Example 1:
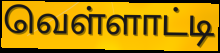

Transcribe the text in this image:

வெள்ளாட்டி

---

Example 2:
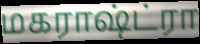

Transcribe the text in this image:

மகராஷ்ட்ரா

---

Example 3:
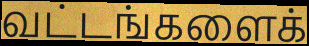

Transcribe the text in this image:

வட்டங்களைக்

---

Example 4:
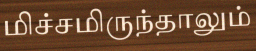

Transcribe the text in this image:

மிச்சமிருந்தாலும்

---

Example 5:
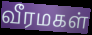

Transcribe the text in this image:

வீரமகள்